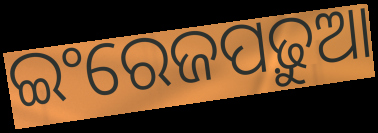
ଇଂରେଜପଢ଼ୁଆ